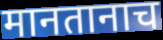
मानतानाच